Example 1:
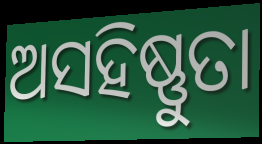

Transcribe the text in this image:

ଅସହିଷ୍ଣୁତା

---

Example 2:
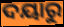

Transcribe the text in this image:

ଦୟାରୁ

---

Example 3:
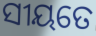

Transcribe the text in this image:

ସୀୟତେ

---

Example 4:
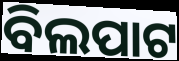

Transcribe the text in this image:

ବିଲପାଟ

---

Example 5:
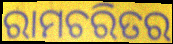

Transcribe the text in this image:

ରାମଚରିତର